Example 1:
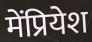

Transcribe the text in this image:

मेंप्रियेश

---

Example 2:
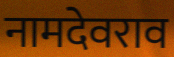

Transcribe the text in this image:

नामदेवराव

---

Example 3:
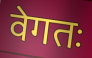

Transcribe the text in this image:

वेगतः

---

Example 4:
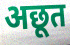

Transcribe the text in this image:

अछूत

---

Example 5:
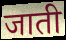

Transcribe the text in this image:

जाती